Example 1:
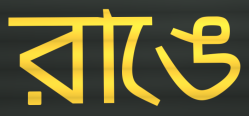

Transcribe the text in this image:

রাঙে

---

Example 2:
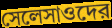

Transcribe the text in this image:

সেলেসাওদের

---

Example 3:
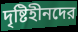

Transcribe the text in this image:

দৃষ্টিহীনদের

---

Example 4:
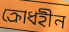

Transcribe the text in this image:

ক্রোধহীন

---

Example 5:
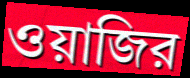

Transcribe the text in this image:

ওয়াজির